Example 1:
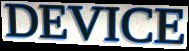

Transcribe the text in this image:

DEVICE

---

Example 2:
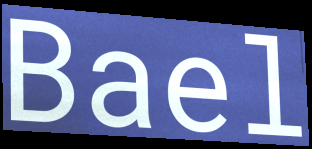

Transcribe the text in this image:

Bael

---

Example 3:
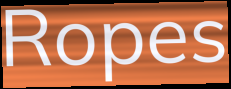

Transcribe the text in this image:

Ropes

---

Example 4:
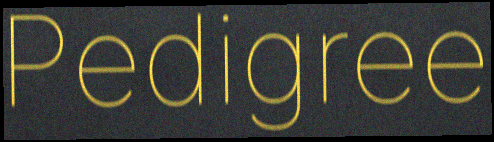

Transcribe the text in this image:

Pedigree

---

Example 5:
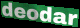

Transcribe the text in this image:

deodar